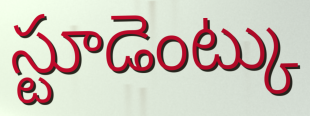
స్టూడెంట్కు